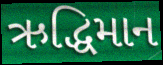
ઋદ્ધિમાન